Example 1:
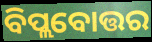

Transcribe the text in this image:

ବିପ୍ଲବୋତ୍ତର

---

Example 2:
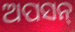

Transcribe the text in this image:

ଅପସନ୍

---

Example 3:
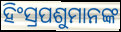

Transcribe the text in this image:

ହିଂସ୍ରପଶୁମାନଙ୍କ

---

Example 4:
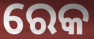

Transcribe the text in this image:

ରେକ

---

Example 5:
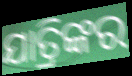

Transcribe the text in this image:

ଯାତ୍ରିଙ୍କର